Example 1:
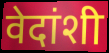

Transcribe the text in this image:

वेदांशी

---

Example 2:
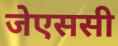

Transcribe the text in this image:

जेएससी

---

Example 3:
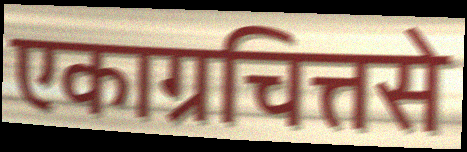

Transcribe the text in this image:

एकाग्रचित्तसे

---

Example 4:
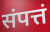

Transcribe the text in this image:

संपत्तं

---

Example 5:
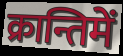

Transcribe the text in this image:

क्रान्तिमें